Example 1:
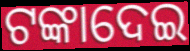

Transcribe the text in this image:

ଟଙ୍କାଦେଇ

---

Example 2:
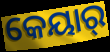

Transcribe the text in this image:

କେୟାର୍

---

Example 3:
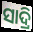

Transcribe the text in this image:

ସାଦ୍ରି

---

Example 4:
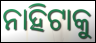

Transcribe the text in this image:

ନାହିଟାକୁ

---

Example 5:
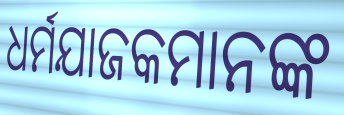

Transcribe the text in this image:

ଧର୍ମଯାଜକମାନଙ୍କ